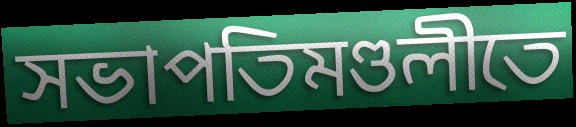
সভাপতিমণ্ডলীতে